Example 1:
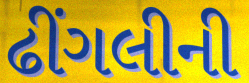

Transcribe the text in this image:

ઢીંગલીની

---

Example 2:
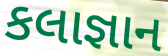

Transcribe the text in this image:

કલાજ્ઞાન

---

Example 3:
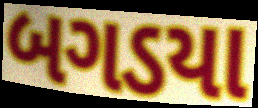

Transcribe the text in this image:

બગડયા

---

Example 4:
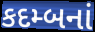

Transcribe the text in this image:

કદમ્બનાં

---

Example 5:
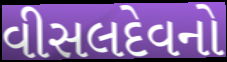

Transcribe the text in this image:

વીસલદેવનો